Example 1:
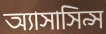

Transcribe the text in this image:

অ্যাসাসিন্স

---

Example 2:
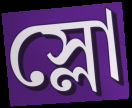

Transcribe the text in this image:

স্লো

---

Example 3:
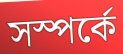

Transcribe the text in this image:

সস্পর্কে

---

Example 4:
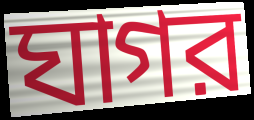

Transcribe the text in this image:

ঘাগর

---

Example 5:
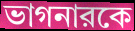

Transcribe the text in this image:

ভাগনারকে